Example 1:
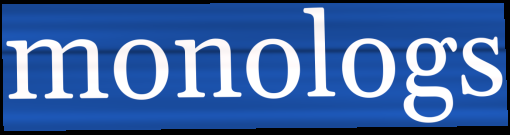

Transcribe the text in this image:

monologs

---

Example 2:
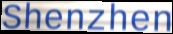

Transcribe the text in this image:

Shenzhen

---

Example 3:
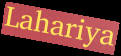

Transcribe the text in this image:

Lahariya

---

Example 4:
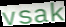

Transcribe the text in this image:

vsak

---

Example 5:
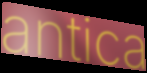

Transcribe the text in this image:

antica